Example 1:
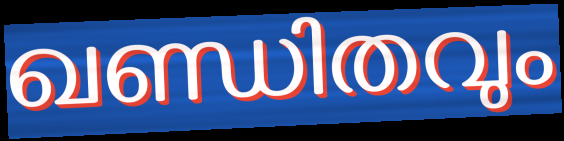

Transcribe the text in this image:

ഖണ്ഡിതവും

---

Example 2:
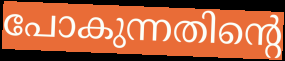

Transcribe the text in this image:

പോകുന്നതിന്റെ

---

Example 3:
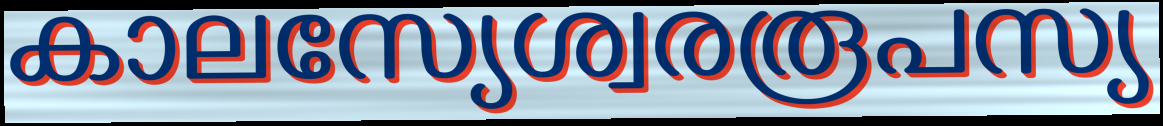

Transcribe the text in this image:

കാലസ്യേശ്വരരൂപസ്യ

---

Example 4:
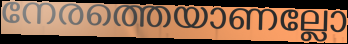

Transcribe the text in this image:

നേരത്തെയാണല്ലോ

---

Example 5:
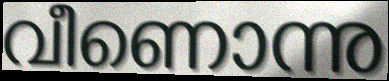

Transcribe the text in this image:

വീണൊന്നു